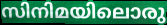
സിനിമയിലൊരു